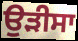
ਉਡ਼ੀਸਾ